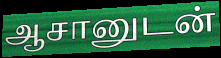
ஆசானுடன்